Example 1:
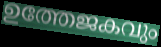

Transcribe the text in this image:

ഉത്തേജകവും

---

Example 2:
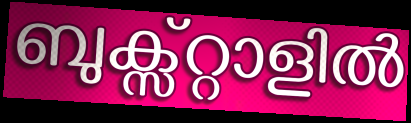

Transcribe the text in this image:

ബുക്സ്റ്റാളിൽ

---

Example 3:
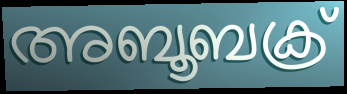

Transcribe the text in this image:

അബൂബക്ര്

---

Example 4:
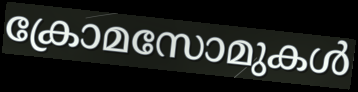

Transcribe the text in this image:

ക്രോമസോമുകൾ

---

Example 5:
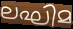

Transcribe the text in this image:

ലഘിമ